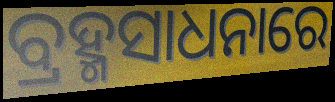
ବ୍ରହ୍ମସାଧନାରେ